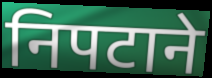
निपटाने